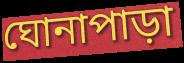
ঘোনাপাড়া